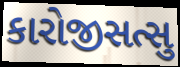
કારોજીસત્સુ